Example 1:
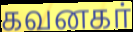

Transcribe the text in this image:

கவனகர்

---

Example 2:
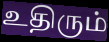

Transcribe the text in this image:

உதிரும்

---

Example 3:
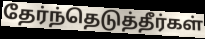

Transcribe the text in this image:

தேர்ந்தெடுத்தீர்கள்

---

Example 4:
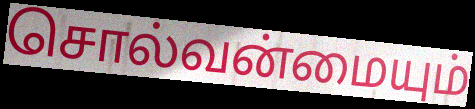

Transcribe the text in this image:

சொல்வன்மையும்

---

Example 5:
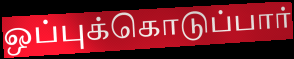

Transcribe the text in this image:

ஒப்புக்கொடுப்பார்